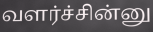
வளர்ச்சின்னு